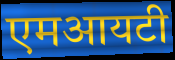
एमआयटी